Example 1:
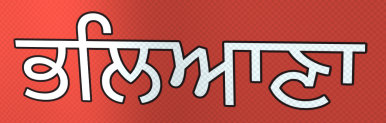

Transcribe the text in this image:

ਭਲਿਆਣਾ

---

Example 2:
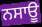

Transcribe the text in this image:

ਨਸਾਊ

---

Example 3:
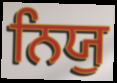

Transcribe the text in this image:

ਨਿਯੁ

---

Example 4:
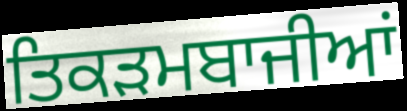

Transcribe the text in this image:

ਤਿਕੜਮਬਾਜੀਆਂ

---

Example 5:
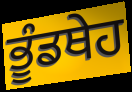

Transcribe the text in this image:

ਭੂੰਡਥੇਹ